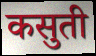
कसुती